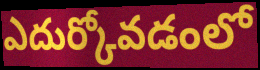
ఎదుర్కోవడంలో